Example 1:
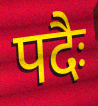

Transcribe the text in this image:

पदैः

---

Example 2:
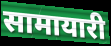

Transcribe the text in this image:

सामायारी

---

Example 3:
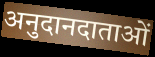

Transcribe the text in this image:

अनुदानदाताओं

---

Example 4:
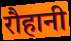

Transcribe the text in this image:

रौहानी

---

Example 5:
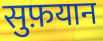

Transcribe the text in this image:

सुफ़यान